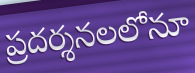
ప్రదర్శనలలోనూ